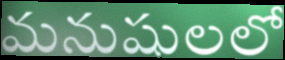
మనుషులలో